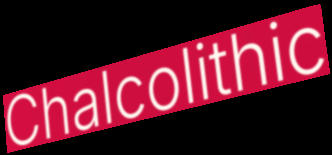
Chalcolithic